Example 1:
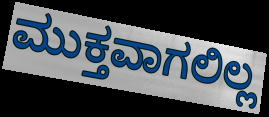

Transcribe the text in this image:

ಮುಕ್ತವಾಗಲಿಲ್ಲ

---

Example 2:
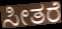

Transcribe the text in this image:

ಸೀತರೆ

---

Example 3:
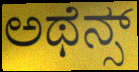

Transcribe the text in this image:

ಅಥೆನ್ಸ್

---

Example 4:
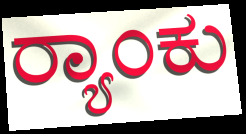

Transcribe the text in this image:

ರ್‍ಯಾಂಕು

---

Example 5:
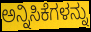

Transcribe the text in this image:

ಅನ್ನಿಸಿಕೆಗಳನ್ನು